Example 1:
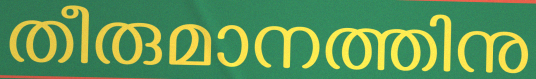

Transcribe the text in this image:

തീരുമാനത്തിനു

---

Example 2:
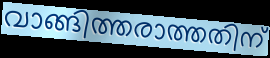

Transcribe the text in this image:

വാങ്ങിത്തരാത്തതിന്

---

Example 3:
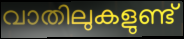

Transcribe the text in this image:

വാതിലുകളുണ്ട്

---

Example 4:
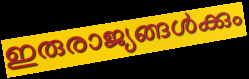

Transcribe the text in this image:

ഇരുരാജ്യങ്ങൾക്കും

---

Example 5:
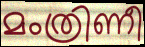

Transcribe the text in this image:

മംത്രിണീ